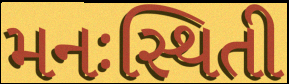
મનઃસ્થિતી